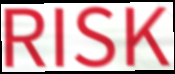
RISK